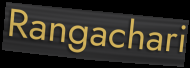
Rangachari